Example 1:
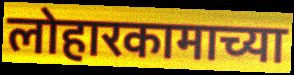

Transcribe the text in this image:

लोहारकामाच्या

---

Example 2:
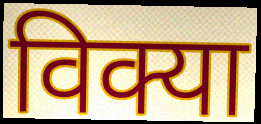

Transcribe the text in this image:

विक्या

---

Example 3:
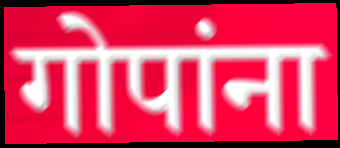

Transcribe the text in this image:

गोपांना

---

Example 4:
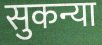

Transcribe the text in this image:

सुकन्या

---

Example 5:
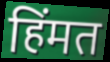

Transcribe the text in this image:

हिंमत